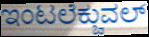
ಇಂಟಲೆಕ್ಚುವಲ್